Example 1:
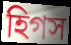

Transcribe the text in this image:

হিগস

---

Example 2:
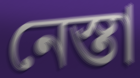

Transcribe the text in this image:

নেস্তা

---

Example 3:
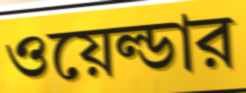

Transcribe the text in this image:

ওয়েল্ডার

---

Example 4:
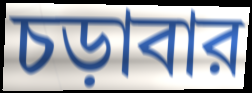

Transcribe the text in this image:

চড়াবার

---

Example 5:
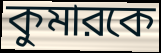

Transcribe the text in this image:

কুমারকে